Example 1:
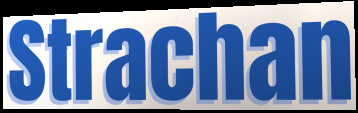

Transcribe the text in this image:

Strachan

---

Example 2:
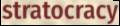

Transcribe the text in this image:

stratocracy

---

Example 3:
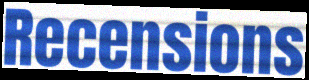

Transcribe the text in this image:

Recensions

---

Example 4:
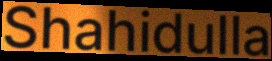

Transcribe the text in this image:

Shahidulla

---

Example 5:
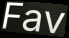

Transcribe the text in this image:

Fav